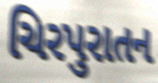
ચિરપુરાતન